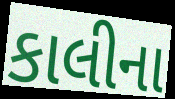
કાલીના